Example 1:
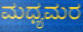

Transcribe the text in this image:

ಮಧ್ಯಮರ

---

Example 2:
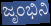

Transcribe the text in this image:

ಜೃಂಭಿನಿ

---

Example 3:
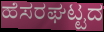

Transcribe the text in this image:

ಹೆಸರಘಟ್ಟದ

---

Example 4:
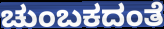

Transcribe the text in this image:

ಚುಂಬಕದಂತೆ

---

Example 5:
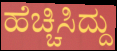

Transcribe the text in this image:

ಹೆಚ್ಚಿಸಿದ್ದು